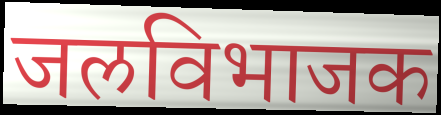
जलविभाजक